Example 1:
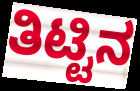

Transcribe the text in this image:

ತಿಟ್ಟಿನ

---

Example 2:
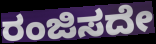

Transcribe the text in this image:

ರಂಜಿಸದೇ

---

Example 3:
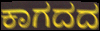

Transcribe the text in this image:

ಕಾಗದದ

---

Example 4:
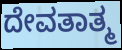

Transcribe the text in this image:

ದೇವತಾತ್ಮ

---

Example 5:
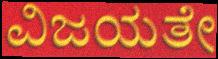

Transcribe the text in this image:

ವಿಜಯತೇ